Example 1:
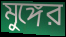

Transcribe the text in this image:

মুঙ্গের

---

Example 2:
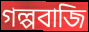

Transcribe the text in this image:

গল্পবাজি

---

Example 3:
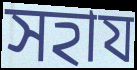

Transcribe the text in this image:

সহায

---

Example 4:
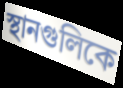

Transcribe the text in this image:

স্থানগুলিকে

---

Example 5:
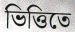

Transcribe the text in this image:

ভিত্তিতে